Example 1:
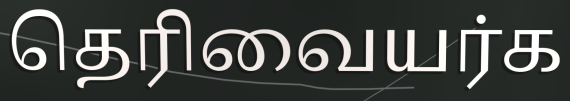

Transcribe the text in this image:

தெரிவையர்க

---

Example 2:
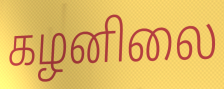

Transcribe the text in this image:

கழனிலை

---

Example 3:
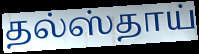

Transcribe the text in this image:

தல்ஸ்தாய்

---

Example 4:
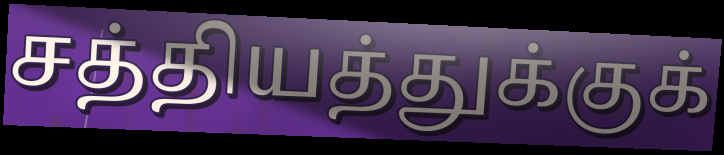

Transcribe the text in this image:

சத்தியத்துக்குக்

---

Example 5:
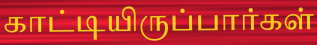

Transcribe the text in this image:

காட்டியிருப்பார்கள்